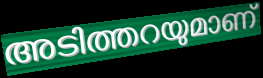
അടിത്തറയുമാണ്